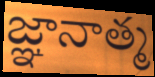
జ్ఞానాత్మ